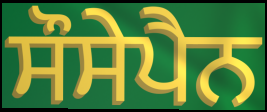
ਸੌਸੇਪੈਨ